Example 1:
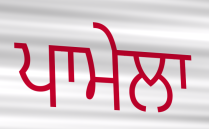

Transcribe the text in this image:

ਪਾਮੇਲਾ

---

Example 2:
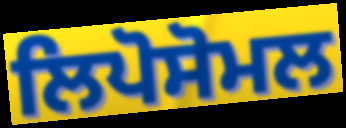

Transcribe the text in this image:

ਲਿਪੋਸੋਮਲ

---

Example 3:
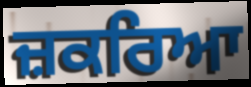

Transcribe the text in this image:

ਜ਼ਕਰਿਆ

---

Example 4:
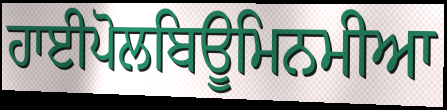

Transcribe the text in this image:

ਹਾਈਪੋਲਬਿਊਮਿਨਮੀਆ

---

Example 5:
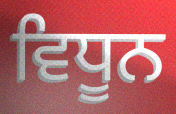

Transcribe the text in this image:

ਵਿਧੂਨ